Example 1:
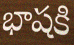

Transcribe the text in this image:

భాషకి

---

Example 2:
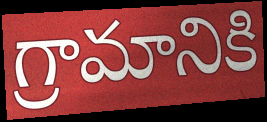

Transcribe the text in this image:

గ్రామానికి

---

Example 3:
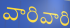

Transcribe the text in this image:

వారివారి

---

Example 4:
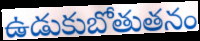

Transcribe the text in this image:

ఉడుకుబోతుతనం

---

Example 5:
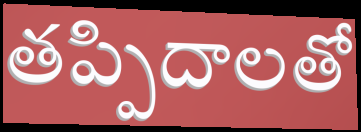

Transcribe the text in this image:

తప్పిదాలతో